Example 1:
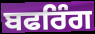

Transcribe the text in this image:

ਬਫਰਿੰਗ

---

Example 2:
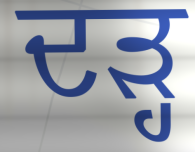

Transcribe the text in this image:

ਦੜ੍ਹ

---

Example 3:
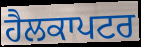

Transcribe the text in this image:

ਹੈਲਕਾਪਟਰ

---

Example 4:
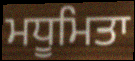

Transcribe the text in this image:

ਮਧੂਮਿਤਾ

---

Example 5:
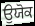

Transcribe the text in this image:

ਉਯੋਕ